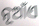
ନୂଆଁଏ